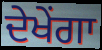
ਦੇਖੇਂਗਾ